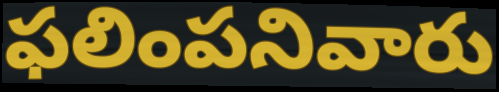
ఫలింపనివారు